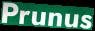
Prunus